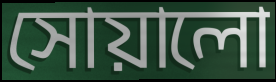
সোয়ালো